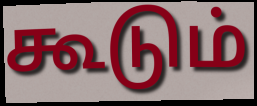
கூடும்